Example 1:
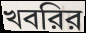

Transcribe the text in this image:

খবরির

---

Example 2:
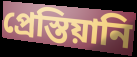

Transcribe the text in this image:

প্রেস্তিয়ানি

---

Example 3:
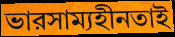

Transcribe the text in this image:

ভারসাম্যহীনতাই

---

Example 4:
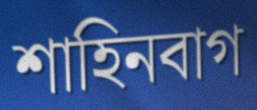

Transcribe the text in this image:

শাহিনবাগ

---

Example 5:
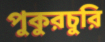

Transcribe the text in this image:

পুকুরচুরি